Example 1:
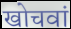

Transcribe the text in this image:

खोचवां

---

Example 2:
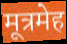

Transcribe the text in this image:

मूत्रमेह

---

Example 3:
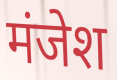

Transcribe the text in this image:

मंजेश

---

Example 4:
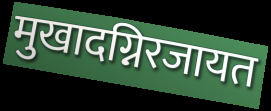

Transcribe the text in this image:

मुखादग्निरजायत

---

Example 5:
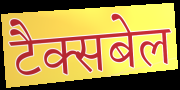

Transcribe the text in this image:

टैक्सबेल